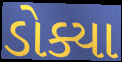
ડોક્યા